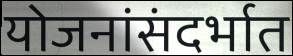
योजनांसंदर्भात